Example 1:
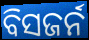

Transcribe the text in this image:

ବିସଜର୍ନ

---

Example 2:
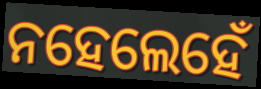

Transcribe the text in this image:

ନହେଲେହେଁ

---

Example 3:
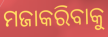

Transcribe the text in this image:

ମଜାକରିବାକୁ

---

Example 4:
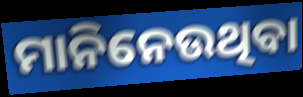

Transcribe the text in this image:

ମାନିନେଉଥିବା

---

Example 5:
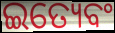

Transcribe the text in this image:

ଇତ୍ୟେବଂ